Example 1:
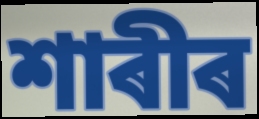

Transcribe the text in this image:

শাৰীৰ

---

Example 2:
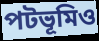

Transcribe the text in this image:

পটভূমিও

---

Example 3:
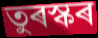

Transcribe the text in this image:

তুৰস্কৰ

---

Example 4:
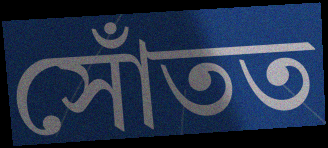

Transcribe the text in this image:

সোঁতত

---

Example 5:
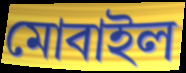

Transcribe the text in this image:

মোবাইল